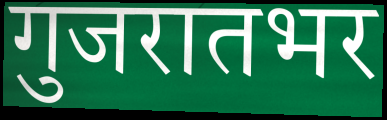
गुजरातभर